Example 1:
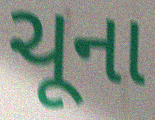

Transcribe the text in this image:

ચૂના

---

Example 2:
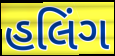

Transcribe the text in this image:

હલિંગ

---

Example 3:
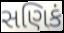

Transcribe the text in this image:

સણિકં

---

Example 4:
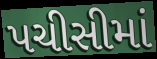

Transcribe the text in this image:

પચીસીમાં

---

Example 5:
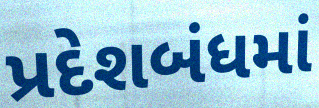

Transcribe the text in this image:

પ્રદેશબંધમાં